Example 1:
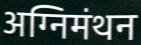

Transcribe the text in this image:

अग्निमंथन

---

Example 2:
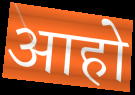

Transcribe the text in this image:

आहो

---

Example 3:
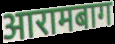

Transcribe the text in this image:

आरामबाग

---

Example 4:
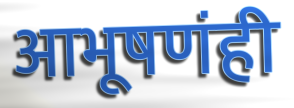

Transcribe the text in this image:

आभूषणंही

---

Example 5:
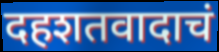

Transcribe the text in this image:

दहशतवादाचं